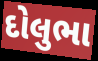
દોલુભા